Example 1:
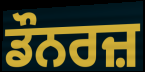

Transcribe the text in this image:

ਡੌਨਰਜ਼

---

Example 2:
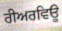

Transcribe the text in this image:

ਰੀਅਰਵਿਊ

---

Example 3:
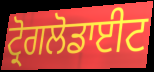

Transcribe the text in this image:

ਟ੍ਰੋਗਲੋਡਾਈਟ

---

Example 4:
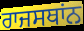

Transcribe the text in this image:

ਰਾਜਸਥਾਂਨ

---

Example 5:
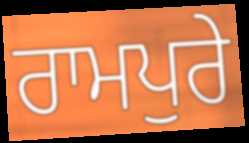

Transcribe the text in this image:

ਰਾਮਪੁਰੇ